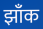
झाँक